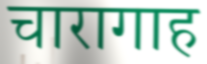
चारागाह